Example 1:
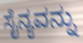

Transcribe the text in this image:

ಸೈನ್ಯವನ್ನು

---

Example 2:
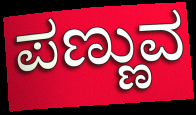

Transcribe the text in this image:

ಪಣ್ಣುವ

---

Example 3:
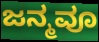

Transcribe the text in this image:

ಜನ್ಮವೂ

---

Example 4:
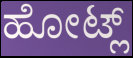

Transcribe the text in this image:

ಹೋಟ್ಲ್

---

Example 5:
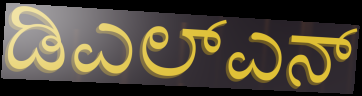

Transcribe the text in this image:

ಡಿಎಲ್ಎನ್